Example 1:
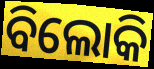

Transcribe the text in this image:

ବିଲୋକି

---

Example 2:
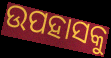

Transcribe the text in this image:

ଉପହାସକୁ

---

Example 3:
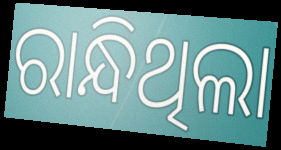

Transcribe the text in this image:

ରାନ୍ଧିଥିଲା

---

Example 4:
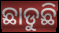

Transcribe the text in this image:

ଛାଡୁଛି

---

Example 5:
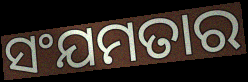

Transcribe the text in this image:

ସଂଯମତାର